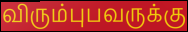
விரும்புபவருக்கு